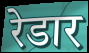
रेडार